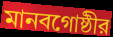
মানবগোষ্ঠীর